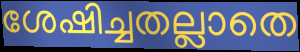
ശേഷിച്ചതല്ലാതെ